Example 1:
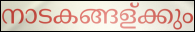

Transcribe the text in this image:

നാടകങ്ങള്ക്കും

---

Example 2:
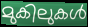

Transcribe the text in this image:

മുകിലുകൾ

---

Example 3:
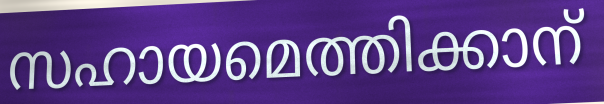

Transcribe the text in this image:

സഹായമെത്തിക്കാന്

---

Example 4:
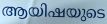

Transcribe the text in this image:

ആയിഷയുടെ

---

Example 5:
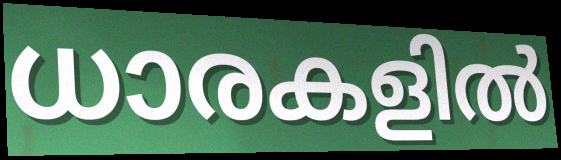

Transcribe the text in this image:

ധാരകളിൽ